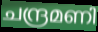
ചന്ദ്രമണി